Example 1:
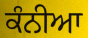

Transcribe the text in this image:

ਕੰਨੀਆ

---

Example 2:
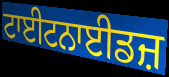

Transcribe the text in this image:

ਟਾਈਟਨਾਈਡਜ਼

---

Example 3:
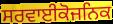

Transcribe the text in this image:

ਸਰਵਾਈਕੋਜਨਿਕ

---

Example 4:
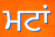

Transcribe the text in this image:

ਮਟਾਂ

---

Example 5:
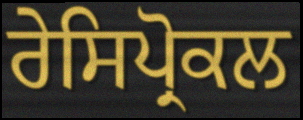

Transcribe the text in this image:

ਰੇਸਿਪ੍ਰੋਕਲ